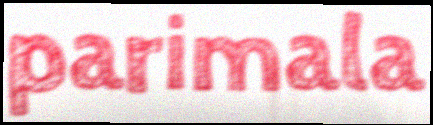
parimala